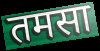
तमसा